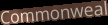
Commonweal